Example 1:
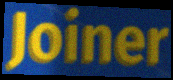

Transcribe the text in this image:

Joiner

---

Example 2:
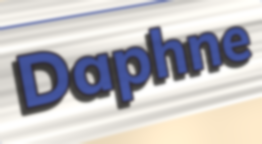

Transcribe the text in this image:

Daphne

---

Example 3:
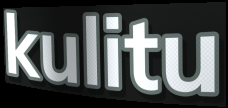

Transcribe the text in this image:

kulitu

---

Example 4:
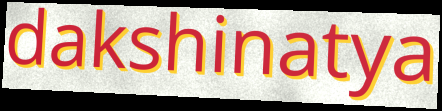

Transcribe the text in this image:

dakshinatya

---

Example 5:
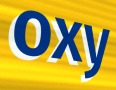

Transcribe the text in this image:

oxy